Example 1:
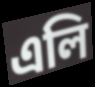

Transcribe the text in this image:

এলি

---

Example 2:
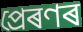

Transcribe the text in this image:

প্ৰেৰণৰ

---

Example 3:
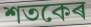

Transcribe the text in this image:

শতকেৰ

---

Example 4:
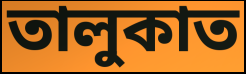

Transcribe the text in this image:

তালুকাত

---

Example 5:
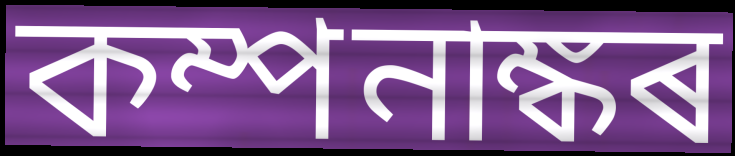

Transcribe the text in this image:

কম্পনাঙ্কৰ